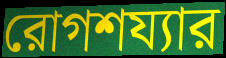
রোগশয্যার